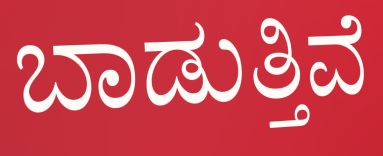
ಬಾಡುತ್ತಿವೆ